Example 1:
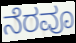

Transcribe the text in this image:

ನೆರವೂ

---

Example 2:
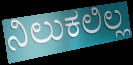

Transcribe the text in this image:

ನಿಲುಕಲಿಲ್ಲ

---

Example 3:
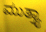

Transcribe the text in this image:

ಮುತ್ತ್ಯಾ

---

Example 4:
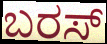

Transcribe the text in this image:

ಬರಸ್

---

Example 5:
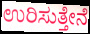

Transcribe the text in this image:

ಉರಿಸುತ್ತೇನೆ